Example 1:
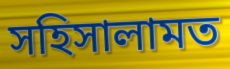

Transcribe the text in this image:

সহিসালামত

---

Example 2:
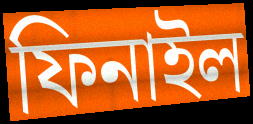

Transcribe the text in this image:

ফিনাইল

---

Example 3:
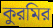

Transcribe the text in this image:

কুরমির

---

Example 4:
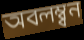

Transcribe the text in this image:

অবলম্ব্বন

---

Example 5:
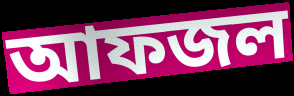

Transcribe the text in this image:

আফজল